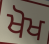
ਖੋਖ